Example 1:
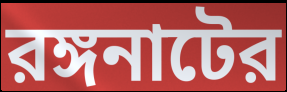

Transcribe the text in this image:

রঙ্গনাটের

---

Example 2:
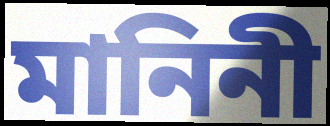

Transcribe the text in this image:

মানিনী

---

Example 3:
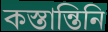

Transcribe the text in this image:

কস্তান্তিনি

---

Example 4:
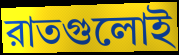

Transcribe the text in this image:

রাতগুলোই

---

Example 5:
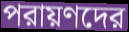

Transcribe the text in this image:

পরায়ণদের